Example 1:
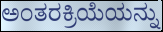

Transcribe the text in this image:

ಅಂತರಕ್ರಿಯೆಯನ್ನು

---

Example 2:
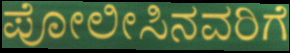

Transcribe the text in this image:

ಪೋಲೀಸಿನವರಿಗೆ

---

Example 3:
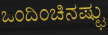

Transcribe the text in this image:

ಒಂದಿಂಚಿನಷ್ಟು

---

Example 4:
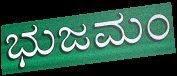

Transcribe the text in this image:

ಭುಜಮಂ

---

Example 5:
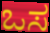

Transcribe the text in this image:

ಒಸ